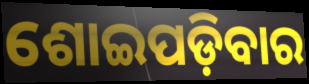
ଶୋଇପଡ଼ିବାର